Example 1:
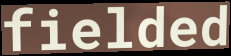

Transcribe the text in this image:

fielded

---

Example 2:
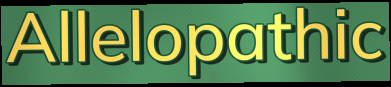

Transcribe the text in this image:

Allelopathic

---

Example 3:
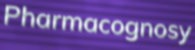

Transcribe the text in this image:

Pharmacognosy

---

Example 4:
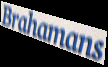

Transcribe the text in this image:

Brahamans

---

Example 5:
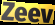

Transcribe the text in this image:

Zeev